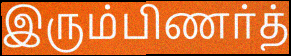
இரும்பிணர்த்